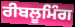
ਰੀਬਲੂਮਿੰਗ